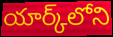
యార్క్‌లోని